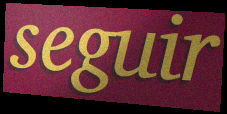
seguir